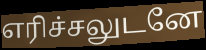
எரிச்சலுடனே